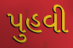
પુહવી